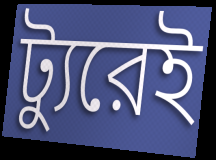
ট্যুরেই